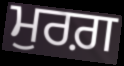
ਮੁਰਗ਼